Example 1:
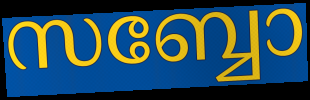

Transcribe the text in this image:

സബ്ബോ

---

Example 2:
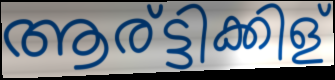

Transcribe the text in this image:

ആര്ട്ടിക്കിള്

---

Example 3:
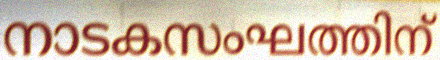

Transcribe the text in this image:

നാടകസംഘത്തിന്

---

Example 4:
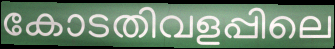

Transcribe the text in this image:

കോടതിവളപ്പിലെ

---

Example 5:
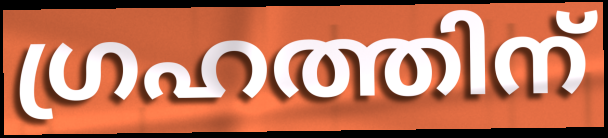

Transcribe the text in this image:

ഗ്രഹത്തിന്